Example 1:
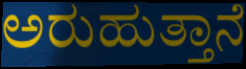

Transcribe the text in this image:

ಅರುಹುತ್ತಾನೆ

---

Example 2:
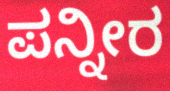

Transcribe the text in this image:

ಪನ್ನೀರ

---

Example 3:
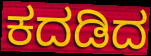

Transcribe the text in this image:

ಕದಡಿದ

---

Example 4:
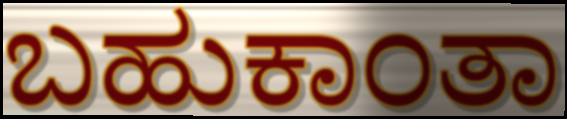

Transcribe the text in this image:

ಬಹುಕಾಂತಾ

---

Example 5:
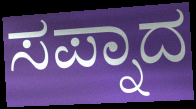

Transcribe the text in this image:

ಸಪ್ನಾದ